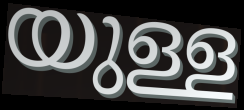
യുള്ള